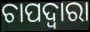
ଚାପଦ୍ବାରା